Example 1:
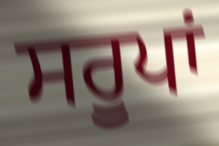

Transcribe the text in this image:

ਸਰੂਪਾਂ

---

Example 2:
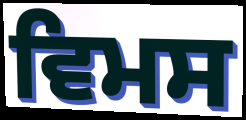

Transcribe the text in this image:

ਵਿਮਸ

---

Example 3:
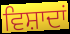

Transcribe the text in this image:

ਵਿਸ਼ਾਦਾਂ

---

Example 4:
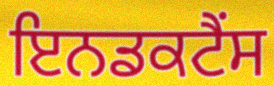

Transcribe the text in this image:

ਇਨਡਕਟੈਂਸ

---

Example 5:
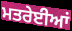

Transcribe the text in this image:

ਮਤਰੇਈਆਂ